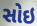
સોઇ